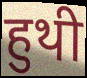
हुथी